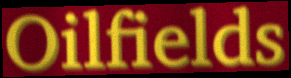
Oilfields